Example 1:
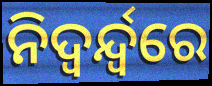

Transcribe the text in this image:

ନିଦ୍ଵର୍ନ୍ଦ୍ୱରେ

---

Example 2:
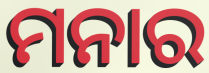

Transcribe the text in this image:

ମନାର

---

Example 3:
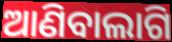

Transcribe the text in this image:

ଆଣିବାଲାଗି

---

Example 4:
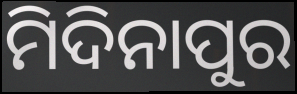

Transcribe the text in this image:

ମିଦିନାପୁର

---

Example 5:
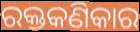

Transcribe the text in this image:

ରକ୍ତକଣିକାର